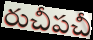
రుచీపచీ